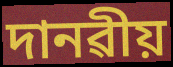
দানৱীয়